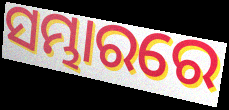
ସମ୍ଭାରରେ